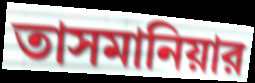
তাসমানিয়ার